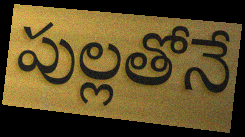
పుల్లతోనే